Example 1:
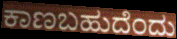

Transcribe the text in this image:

ಕಾಣಬಹುದೆಂದು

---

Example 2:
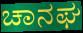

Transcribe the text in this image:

ಚಾನಘ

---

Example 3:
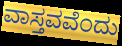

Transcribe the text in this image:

ವಾಸ್ತವವೆಂದು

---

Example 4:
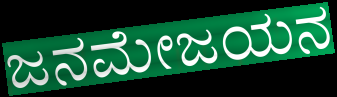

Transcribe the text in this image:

ಜನಮೇಜಯನ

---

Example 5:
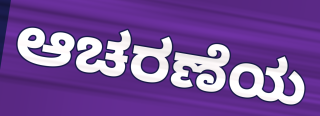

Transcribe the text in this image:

ಆಚರಣೆಯ